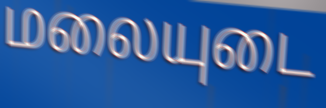
மலையுடை